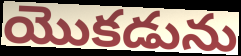
యొకడును